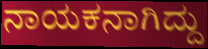
ನಾಯಕನಾಗಿದ್ದು